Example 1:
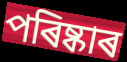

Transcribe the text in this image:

পৰিষ্কাৰ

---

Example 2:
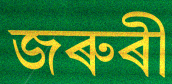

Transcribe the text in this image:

জৰুৰী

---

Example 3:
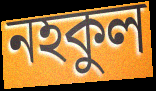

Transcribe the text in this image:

নহকুল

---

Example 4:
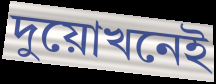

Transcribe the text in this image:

দুয়োখনেই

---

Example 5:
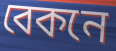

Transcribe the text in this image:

বেকনে